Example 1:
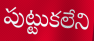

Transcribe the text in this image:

పుట్టుకలేని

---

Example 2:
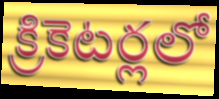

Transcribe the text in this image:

క్రికెటర్లలో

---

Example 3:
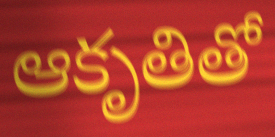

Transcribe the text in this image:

ఆకృతితో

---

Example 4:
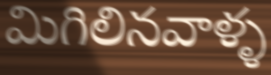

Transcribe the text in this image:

మిగిలినవాళ్ళ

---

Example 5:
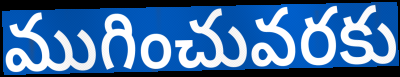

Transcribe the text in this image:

ముగించువరకు